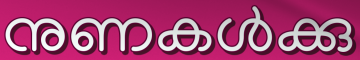
നുണകൾക്കു